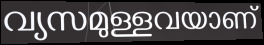
വ്യസമുള്ളവയാണ്